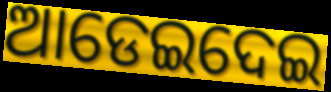
ଆଡେଇଦେଇ